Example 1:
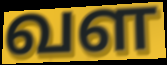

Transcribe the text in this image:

வள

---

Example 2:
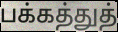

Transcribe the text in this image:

பக்கத்துத்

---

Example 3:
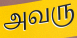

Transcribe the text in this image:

அவரு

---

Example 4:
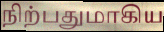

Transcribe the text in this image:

நிற்பதுமாகிய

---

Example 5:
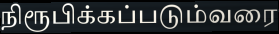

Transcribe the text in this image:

நிரூபிக்கப்படும்வரை